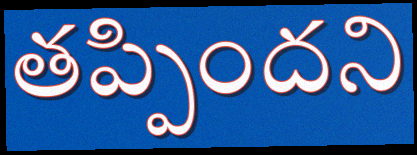
తప్పిందని